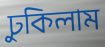
ঢুকিলাম